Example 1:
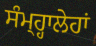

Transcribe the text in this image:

ਸੰਮ੍ਹ੍ਹਾਲੇਹਾਂ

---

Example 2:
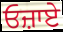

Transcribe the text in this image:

ਓਜ਼ਾਏ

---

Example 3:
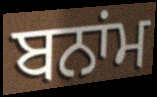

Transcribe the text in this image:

ਬਨਾਂਮ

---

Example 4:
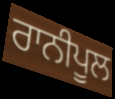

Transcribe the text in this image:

ਰਾਨੀਪੂਲ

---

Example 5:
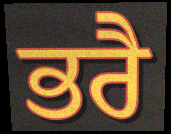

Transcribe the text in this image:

ਭਰੈ